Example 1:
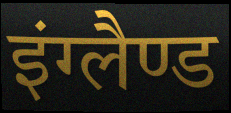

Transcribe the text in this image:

इंग्‍लैण्‍ड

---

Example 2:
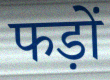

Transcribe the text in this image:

फड़ों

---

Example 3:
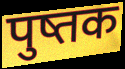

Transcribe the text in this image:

पुष्तक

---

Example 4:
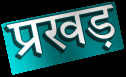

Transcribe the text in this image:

प्रखड़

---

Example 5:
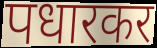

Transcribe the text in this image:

पधारकर